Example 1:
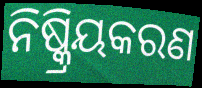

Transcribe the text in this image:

ନିଷ୍କ୍ରିୟକରଣ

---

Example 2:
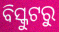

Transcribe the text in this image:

ବିସ୍କୁଟରୁ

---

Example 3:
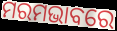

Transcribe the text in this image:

ମରମଭାବରେ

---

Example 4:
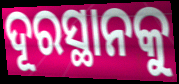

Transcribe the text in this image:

ଦୂରସ୍ଥାନକୁ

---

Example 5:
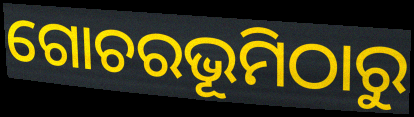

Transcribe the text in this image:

ଗୋଚରଭୂମିଠାରୁ